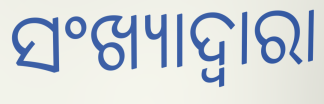
ସଂଖ୍ୟାଦ୍ଵାରା